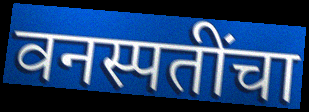
वनस्पतींचा